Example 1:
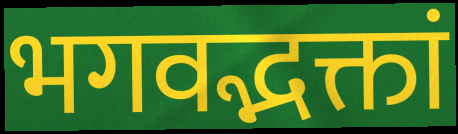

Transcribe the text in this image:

भगवद्भक्तां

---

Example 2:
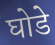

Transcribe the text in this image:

घोडे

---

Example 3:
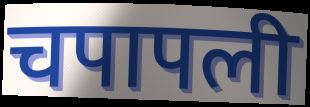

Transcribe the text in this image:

चपापली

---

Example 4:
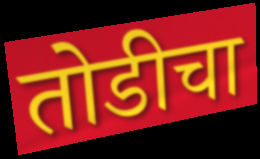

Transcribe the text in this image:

तोडीचा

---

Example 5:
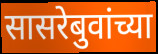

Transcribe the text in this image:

सासरेबुवांच्या